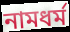
নামধৰ্ম